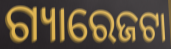
ଗ୍ୟାରେଜଟା